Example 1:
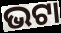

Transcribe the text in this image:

ଭଟା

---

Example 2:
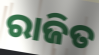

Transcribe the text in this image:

ରାଜିତ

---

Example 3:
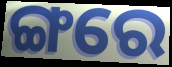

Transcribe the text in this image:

ଙ୍ଗରେ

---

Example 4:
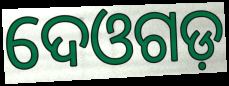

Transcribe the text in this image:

ଦେଓଗଡ଼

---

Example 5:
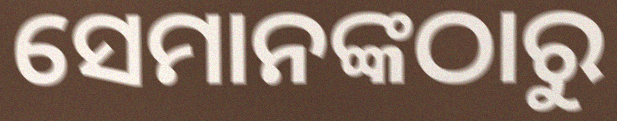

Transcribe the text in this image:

ସେମାନଙ୍କଠାରୁ